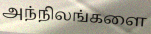
அந்நிலங்களை